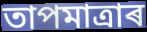
তাপমাত্ৰাৰ